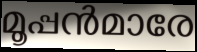
മൂപ്പൻമാരേ